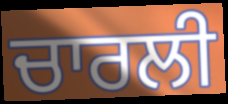
ਚਾਰਲੀ